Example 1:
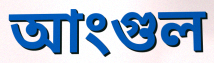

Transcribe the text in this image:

আংগুল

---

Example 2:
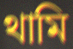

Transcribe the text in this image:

থামি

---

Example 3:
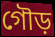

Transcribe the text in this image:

গৌড়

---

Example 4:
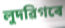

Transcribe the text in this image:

লুদৱিগৰে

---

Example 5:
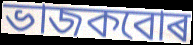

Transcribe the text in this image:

ভাজকবোৰ